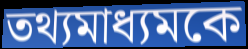
তথ্যমাধ্যমকে